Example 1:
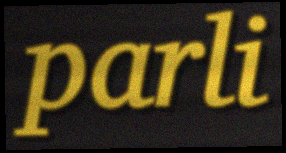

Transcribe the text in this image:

parli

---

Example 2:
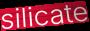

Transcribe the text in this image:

silicate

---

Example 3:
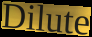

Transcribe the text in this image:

Dilute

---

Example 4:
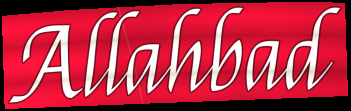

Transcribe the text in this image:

Allahbad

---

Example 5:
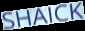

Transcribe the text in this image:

SHAICK